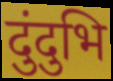
दुंदुभि